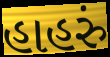
હાહરું